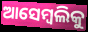
ଆସେମ୍ବଲିକୁ